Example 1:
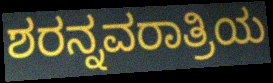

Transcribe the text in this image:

ಶರನ್ನವರಾತ್ರಿಯ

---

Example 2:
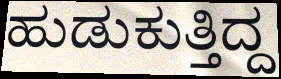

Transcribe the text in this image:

ಹುಡುಕುತ್ತಿದ್ದ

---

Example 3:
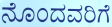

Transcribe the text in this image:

ನೊಂದವರಿಗೆ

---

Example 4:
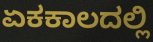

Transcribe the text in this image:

ಏಕಕಾಲದಲ್ಲಿ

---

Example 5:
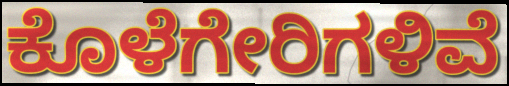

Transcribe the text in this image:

ಕೊಳೆಗೇರಿಗಳಿವೆ